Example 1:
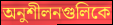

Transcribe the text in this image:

অনুশীলনগুলিকে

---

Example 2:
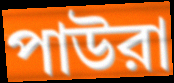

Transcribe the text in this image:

পাউরা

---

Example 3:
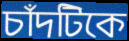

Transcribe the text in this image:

চাঁদটিকে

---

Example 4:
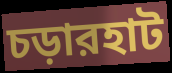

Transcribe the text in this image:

চড়ারহাট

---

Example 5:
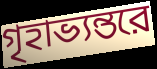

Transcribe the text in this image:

গৃহাভ্যন্তরে